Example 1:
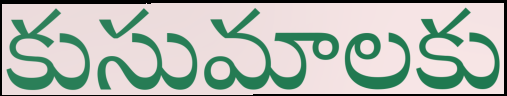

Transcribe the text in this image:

కుసుమాలకు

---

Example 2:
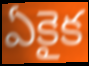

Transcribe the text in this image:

ఏకైక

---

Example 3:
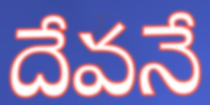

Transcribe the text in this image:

దేవనే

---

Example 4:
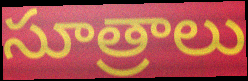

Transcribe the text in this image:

సూత్రాలు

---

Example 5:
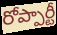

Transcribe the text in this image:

రోప్పార్టీ